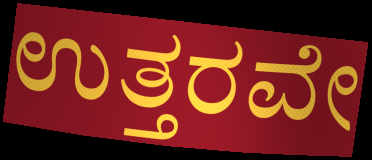
ಉತ್ತರವೇ